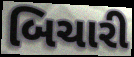
બિચારી